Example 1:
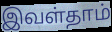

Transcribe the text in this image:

இவள்தாம்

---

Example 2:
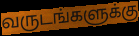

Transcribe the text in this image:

வருடங்களுக்கு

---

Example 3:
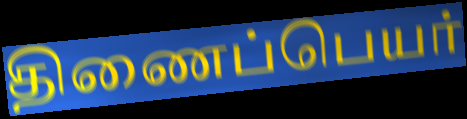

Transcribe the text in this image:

திணைப்பெயர்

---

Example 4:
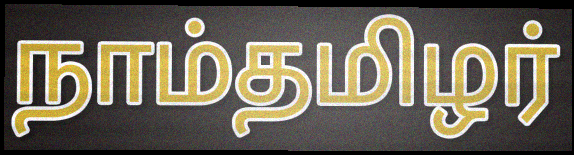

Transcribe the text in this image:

நாம்தமிழர்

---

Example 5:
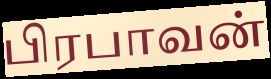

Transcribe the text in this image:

பிரபாவன்